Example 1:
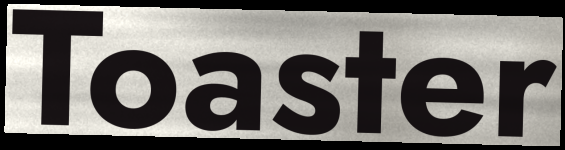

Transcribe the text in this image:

Toaster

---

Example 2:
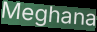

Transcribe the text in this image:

Meghana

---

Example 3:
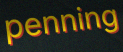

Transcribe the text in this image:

penning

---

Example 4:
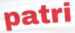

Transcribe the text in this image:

patri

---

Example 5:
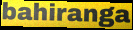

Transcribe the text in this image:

bahiranga